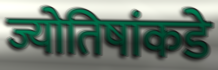
ज्योतिषांकडे